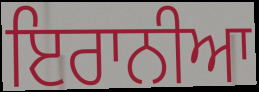
ਇਰਾਨੀਆ